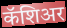
कॅशिअर